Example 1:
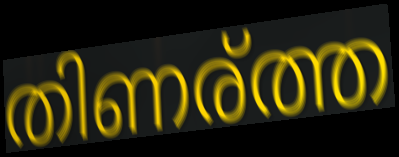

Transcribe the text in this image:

തിണര്ത്ത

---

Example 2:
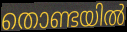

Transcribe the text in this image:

തൊണ്ടയിൽ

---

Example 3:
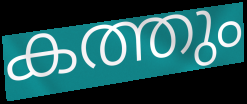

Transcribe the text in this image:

കത്തും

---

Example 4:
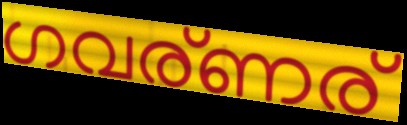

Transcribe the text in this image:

ഗവര്ണര്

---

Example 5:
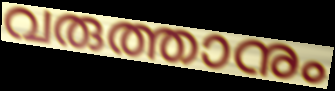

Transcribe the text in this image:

വരുത്താനും